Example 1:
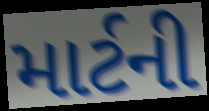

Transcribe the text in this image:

માર્ટની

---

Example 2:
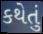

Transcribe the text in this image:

કથેતું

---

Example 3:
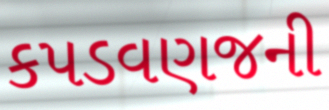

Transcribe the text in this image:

કપડવણજની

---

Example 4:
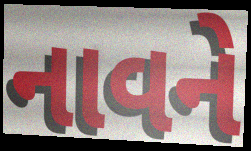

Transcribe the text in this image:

નાવને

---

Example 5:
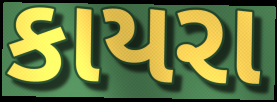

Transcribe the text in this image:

કાયરા